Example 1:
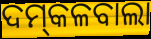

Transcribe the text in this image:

ଦମ୍‍କଳବାଲା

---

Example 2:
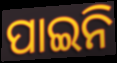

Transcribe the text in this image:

ପାଇନି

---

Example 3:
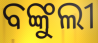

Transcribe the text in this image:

ବଙ୍କୁଲୀ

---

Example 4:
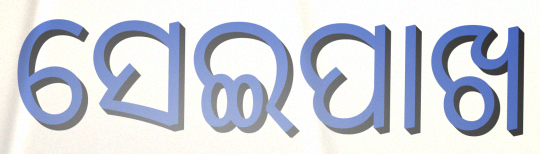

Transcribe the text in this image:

ସେଇପାଖ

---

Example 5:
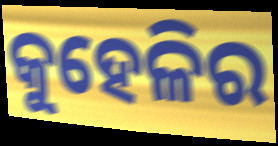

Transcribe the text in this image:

କୁହେଳିର